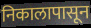
निकालापासून